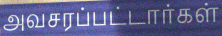
அவசரப்பட்டார்கள்